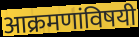
आक्रमणांविषयी